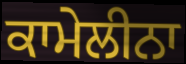
ਕਾਮੇਲੀਨਾ